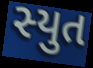
સ્યુત